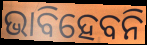
ଭାବିହେବନି